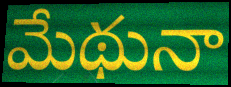
మేథునా